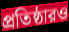
প্রতিষ্ঠারও